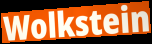
Wolkstein